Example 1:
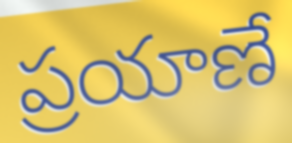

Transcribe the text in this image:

ప్రయాణే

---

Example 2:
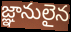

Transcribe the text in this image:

జ్ఞానులైన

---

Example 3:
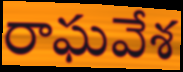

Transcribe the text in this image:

రాఘవేశ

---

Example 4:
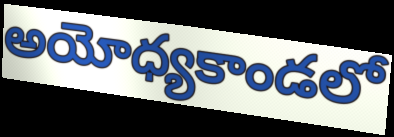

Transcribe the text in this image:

అయోధ్యకాండలో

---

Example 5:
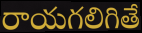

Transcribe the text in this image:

రాయగలిగితే